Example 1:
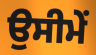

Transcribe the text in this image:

ਉਸੀਮੇਂ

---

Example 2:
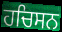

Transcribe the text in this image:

ਹਚਿਸਨ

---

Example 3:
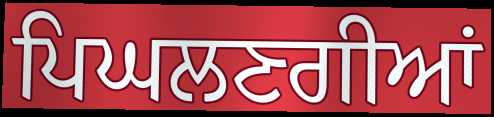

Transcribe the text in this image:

ਪਿਘਲਣਗੀਆਂ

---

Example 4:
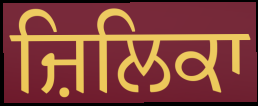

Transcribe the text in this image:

ਜ਼ਿਲਿਕਾ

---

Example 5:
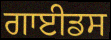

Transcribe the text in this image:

ਗਾਈਡਸ